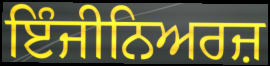
ਇੰਜੀਨਿਅਰਜ਼